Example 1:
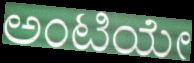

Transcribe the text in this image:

ಅಂಟಿಯೇ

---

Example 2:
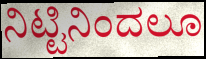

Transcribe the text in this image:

ನಿಟ್ಟಿನಿಂದಲೂ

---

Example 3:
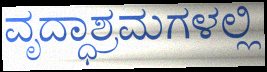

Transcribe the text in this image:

ವೃದ್ಧಾಶ್ರಮಗಳಲ್ಲಿ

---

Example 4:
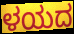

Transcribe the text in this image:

ಳಯದ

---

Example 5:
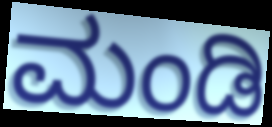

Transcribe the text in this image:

ಮಂಡಿ